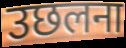
उछलना